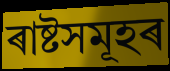
ৰাষ্টসমূহৰ